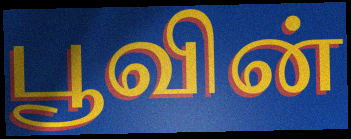
பூவின்